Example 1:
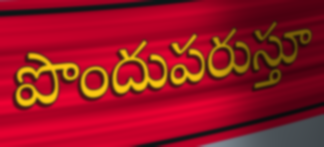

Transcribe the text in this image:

పొందుపరుస్తూ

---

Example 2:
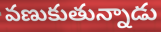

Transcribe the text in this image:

వణుకుతున్నాడు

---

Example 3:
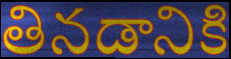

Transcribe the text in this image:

తినడానికి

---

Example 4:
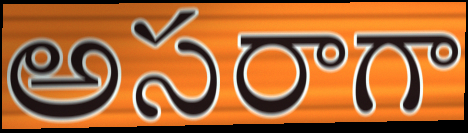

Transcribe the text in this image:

అసరాగా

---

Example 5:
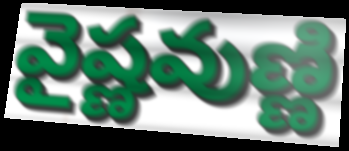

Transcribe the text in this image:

వైష్ణవుణ్ణి